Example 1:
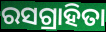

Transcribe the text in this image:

ରସଗ୍ରାହିତା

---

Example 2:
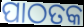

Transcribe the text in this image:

ପାଠତକ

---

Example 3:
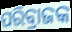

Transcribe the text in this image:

ପରିବ୍ରାଜକ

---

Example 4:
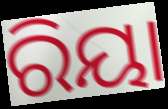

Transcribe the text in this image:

ରିୟା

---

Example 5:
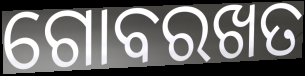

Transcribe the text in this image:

ଗୋବରଖତ